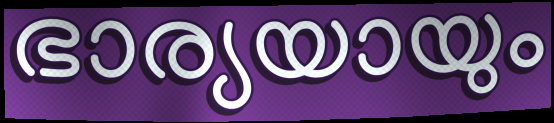
ഭാര്യയായും